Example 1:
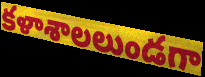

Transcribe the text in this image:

కళాశాలలుండగా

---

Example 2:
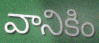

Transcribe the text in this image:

వానికిం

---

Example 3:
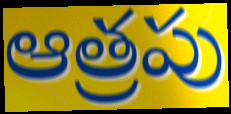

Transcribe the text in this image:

ఆత్రపు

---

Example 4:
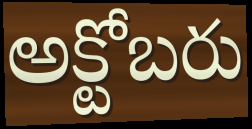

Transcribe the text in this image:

అక్టోబరు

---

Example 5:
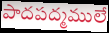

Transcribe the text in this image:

పాదపద్మములే